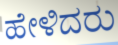
ಹೇಳಿದರು